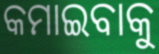
କମାଇବାକୁ